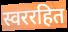
स्वररहित